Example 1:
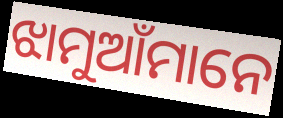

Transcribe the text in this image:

ଝାମୁଆଁମାନେ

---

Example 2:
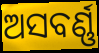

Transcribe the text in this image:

ଅସବର୍ଣ୍ଣ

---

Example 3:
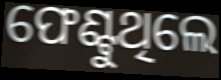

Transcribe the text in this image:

ଫେଣ୍ଟୁଥିଲେ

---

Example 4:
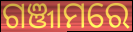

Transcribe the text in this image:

ଗଞ୍ଜାମରେ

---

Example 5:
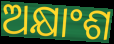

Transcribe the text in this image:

ଅକ୍ଷାଂଶ